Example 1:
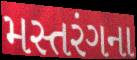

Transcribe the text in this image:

મસ્તરંગના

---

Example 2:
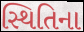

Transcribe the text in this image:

સ્થિતિના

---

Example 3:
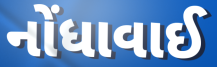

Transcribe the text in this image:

નોંધાવાઈ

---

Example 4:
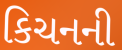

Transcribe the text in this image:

કિચનની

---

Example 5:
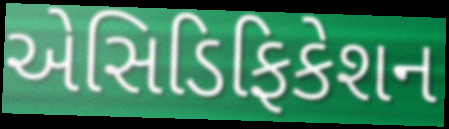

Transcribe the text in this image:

એસિડિફિકેશન